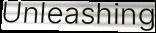
Unleashing